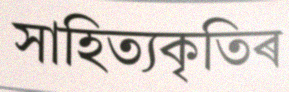
সাহিত্যকৃতিৰ